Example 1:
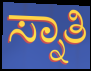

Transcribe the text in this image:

ಸ್ನಾತಿ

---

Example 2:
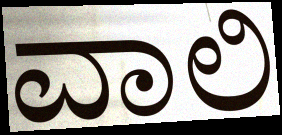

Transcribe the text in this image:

ವಾಲಿ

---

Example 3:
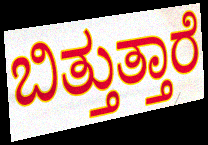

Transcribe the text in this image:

ಬಿತ್ತುತ್ತಾರೆ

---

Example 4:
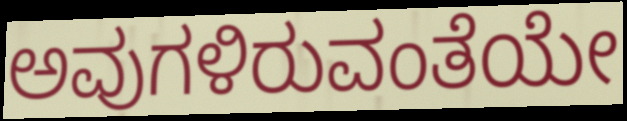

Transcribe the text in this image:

ಅವುಗಳಿರುವಂತೆಯೇ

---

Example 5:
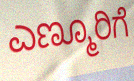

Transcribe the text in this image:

ಎಣ್ಮೂರಿಗೆ